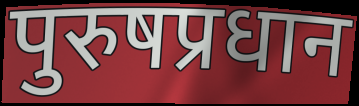
पुरुषप्रधान